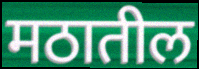
मठातील